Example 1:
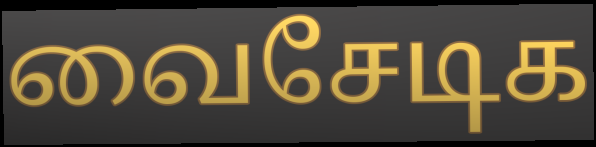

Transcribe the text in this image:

வைசேடிக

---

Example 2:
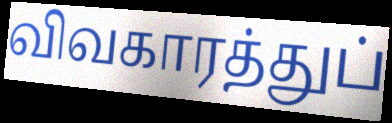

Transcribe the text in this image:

விவகாரத்துப்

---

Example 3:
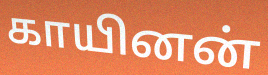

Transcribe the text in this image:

காயினன்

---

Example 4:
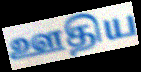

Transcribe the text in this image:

ஊதிய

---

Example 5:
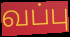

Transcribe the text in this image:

வப்பு